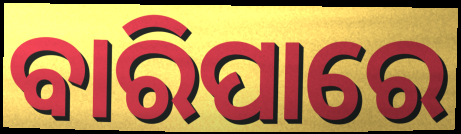
ବାରିପାରେ